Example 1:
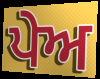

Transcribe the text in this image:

ਪੇਅ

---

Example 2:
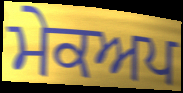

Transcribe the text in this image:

ਮੇਕਅਪ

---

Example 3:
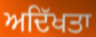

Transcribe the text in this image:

ਅਦਿੱਖਤਾ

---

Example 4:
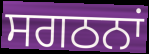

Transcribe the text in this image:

ਸਗਠਨਾਂ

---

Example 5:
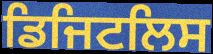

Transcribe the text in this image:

ਡਿਜਿਟਲਿਸ